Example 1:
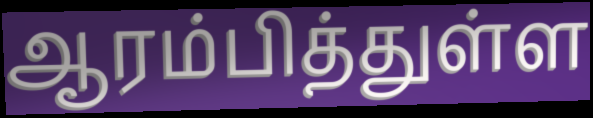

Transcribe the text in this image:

ஆரம்பித்துள்ள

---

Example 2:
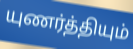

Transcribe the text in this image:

யுணர்த்தியும்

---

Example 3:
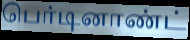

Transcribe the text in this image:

பெர்டினாண்ட்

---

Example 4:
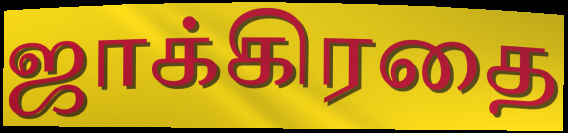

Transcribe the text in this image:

ஜாக்கிரதை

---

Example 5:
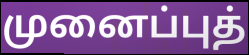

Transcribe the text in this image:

முனைப்புத்